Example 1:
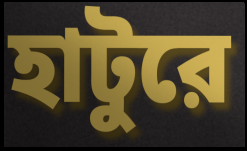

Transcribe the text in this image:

হাটুরে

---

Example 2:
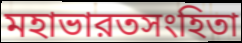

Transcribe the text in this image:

মহাভারতসংহিতা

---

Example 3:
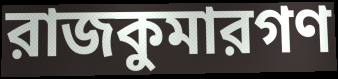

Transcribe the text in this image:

রাজকুমারগণ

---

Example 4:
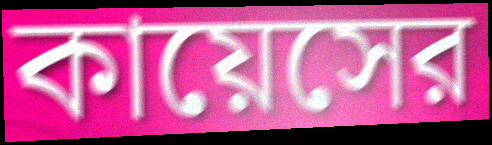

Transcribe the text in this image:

কায়েসের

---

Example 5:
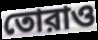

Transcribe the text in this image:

তোরাও